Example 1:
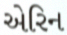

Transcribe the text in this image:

એરિન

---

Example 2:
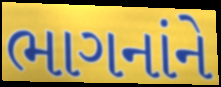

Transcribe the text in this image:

ભાગનાંને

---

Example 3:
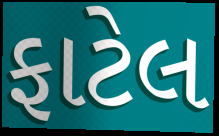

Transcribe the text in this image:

ફાટેલ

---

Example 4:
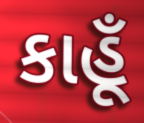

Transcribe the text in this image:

કાહૂઁ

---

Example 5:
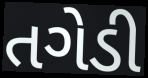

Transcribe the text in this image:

તગેડી